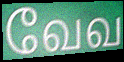
வேவ